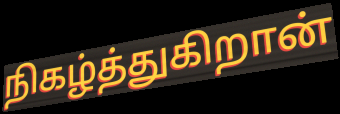
நிகழ்த்துகிறான்